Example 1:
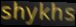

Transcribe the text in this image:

shykhs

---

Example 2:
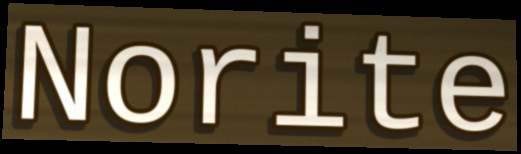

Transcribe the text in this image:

Norite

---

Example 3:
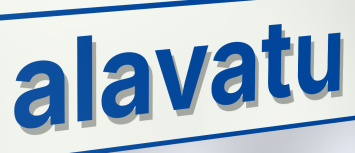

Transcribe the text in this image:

alavatu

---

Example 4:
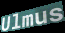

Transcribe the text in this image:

Ulmus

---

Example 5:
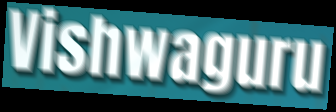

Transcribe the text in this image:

Vishwaguru